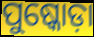
ପୁଷ୍କୋଡ଼ା